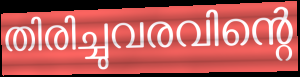
തിരിച്ചുവരവിന്റെ